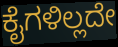
ಕೈಗಳಿಲ್ಲದೇ